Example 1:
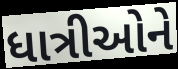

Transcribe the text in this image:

ધાત્રીઓને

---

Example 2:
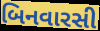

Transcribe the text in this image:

બિનવારસી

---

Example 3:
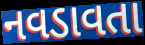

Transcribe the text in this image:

નવડાવતા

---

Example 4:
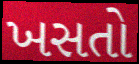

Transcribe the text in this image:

ખસતો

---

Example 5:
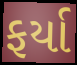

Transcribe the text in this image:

ફર્યા